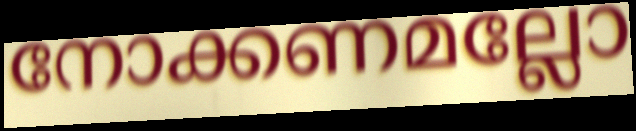
നോക്കണമല്ലോ